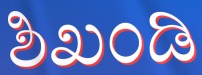
ಶಿಖಂಡಿ